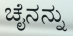
ಚೈನನ್ನು